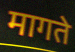
मागते